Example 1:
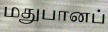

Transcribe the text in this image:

மதுபானப்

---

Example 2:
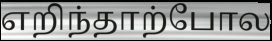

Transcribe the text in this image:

எறிந்தாற்போல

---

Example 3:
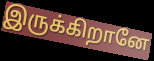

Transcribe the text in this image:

இருக்கிறானே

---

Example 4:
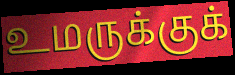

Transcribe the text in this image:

உமருக்குக்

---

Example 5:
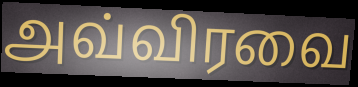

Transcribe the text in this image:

அவ்விரவை